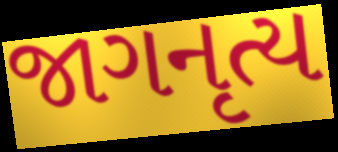
જાગનૃત્ય